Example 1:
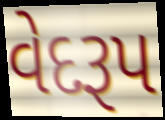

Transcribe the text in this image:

વેદરૂપ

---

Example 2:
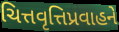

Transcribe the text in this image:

ચિત્તવૃત્તિપ્રવાહને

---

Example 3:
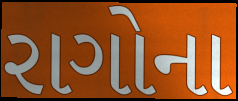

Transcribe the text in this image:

રાગોના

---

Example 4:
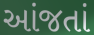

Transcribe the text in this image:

આંજતાં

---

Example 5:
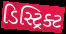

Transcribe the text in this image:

ડિસ્ટ્રિક્ટ